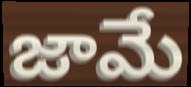
జామే